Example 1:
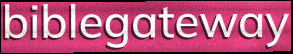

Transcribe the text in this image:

biblegateway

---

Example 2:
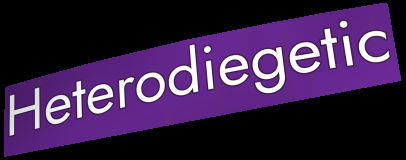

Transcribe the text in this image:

Heterodiegetic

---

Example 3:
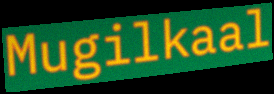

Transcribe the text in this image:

Mugilkaal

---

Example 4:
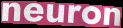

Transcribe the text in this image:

neuron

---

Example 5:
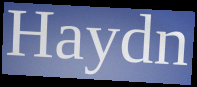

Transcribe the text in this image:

Haydn